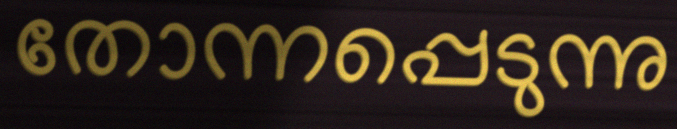
തോന്നപ്പെടുന്നു